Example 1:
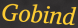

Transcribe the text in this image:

Gobind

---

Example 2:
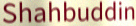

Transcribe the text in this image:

Shahbuddin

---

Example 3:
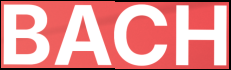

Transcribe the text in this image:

BACH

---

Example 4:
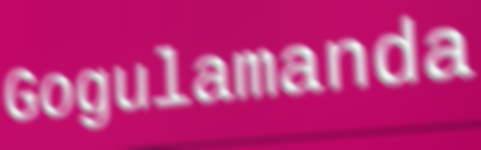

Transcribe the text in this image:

Gogulamanda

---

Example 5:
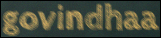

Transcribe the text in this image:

govindhaa